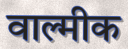
वाल्मीक